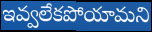
ఇవ్వలేకపోయామని